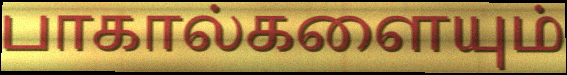
பாகால்களையும்